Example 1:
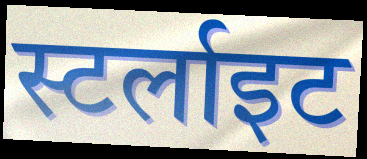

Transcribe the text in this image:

स्टर्लाइट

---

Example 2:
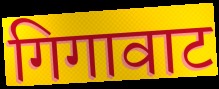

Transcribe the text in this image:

गिगावाट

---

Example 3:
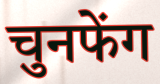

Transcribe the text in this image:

चुनफेंग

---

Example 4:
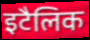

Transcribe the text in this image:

इटैलिक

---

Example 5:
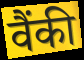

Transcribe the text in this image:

वैंकी